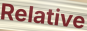
Relative